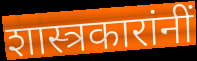
शास्त्रकारांनीं